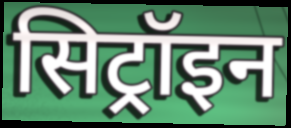
सिट्रॉइन